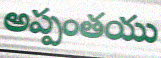
అప్పంతయు